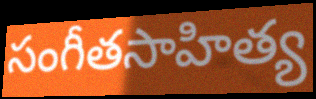
సంగీతసాహిత్య